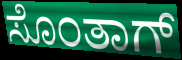
ಸೊಂತಾಗ್